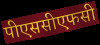
पीएससीएफसी